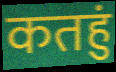
कतहुं